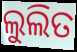
ଲୁଲିତ